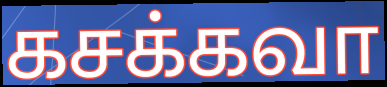
கசக்கவா